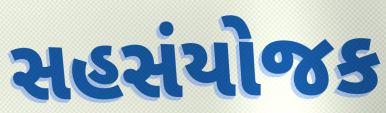
સહસંયોજક